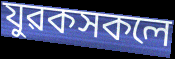
যুৱকসকলে